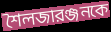
শৈলজারঞ্জনকে